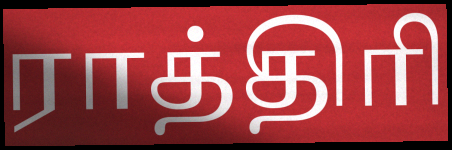
ராத்திரி